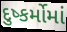
દુષ્કર્મોમાં